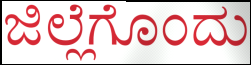
ಜಿಲ್ಲೆಗೊಂದು